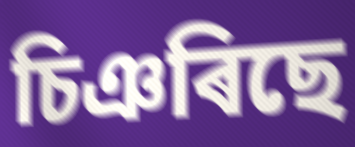
চিঞৰিছে